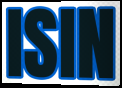
ISIN